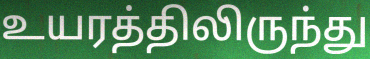
உயரத்திலிருந்து